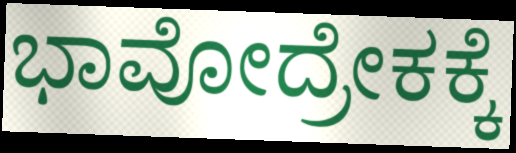
ಭಾವೋದ್ರೇಕಕ್ಕೆ